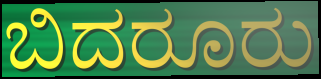
ಬಿದರೂರು